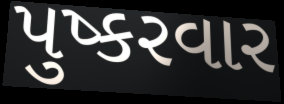
પુષ્કરવાર